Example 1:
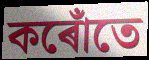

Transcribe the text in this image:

কৰোঁতে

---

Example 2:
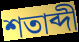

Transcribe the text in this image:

শতাব্দী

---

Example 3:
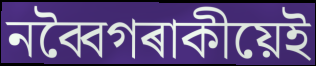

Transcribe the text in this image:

নব্বৈগৰাকীয়েই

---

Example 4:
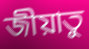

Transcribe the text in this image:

জীয়াতু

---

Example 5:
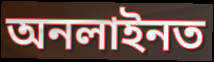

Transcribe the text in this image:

অনলাইনত